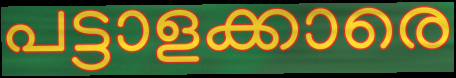
പട്ടാളക്കാരെ